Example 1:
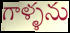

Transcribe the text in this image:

గాళ్ళను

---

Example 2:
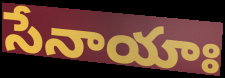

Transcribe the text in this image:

సేనాయాః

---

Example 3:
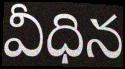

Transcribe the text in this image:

వీధిన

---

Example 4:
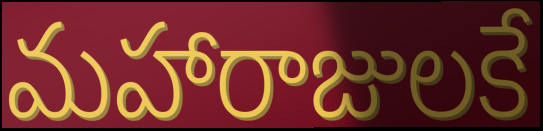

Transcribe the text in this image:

మహారాజులకే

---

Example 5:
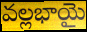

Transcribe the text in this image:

వల్లభాయై